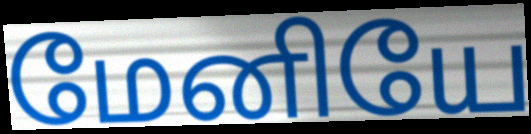
மேனியே